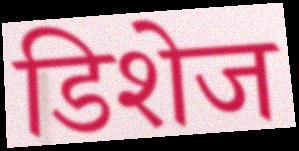
डिशेज